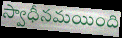
స్వాధీనమయింది